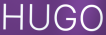
HUGO